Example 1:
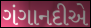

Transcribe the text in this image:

ગંગાનદીએ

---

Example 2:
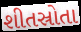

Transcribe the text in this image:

શીતસ્રોતા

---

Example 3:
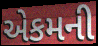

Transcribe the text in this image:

એકમની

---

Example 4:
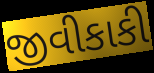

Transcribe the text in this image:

જીવીકાકી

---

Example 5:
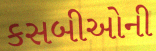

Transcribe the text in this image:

કસબીઓની